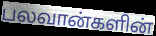
பலவான்களின்